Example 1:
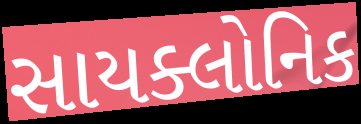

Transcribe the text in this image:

સાયક્લોનિક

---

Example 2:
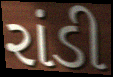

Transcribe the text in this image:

રાંડી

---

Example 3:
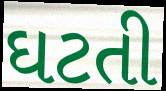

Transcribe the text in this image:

ઘટતી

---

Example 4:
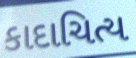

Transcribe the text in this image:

કાદાચિત્ય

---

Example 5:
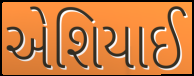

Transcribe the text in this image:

એશિયાઈ